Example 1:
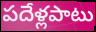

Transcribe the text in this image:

పదేళ్లపాటు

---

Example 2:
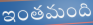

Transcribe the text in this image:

ఇంతమంది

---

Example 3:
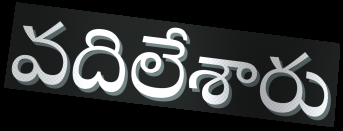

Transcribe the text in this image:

వదిలేశారు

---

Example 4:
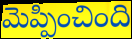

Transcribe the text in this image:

మెప్పించింది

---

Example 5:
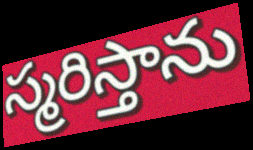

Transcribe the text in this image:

స్మరిస్తాను